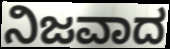
ನಿಜವಾದ